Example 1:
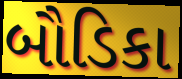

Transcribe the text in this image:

બૌડિકા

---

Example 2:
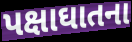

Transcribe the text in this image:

પક્ષાઘાતના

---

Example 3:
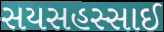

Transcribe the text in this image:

સયસહસ્સાઈ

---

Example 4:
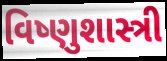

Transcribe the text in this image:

વિષ્ણુશાસ્ત્રી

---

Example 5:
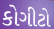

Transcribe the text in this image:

કોગીટો